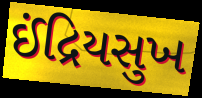
ઈંદ્રિયસુખ